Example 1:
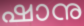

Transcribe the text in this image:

ഷാനു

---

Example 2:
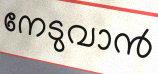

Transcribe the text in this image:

നേടുവാൻ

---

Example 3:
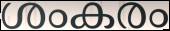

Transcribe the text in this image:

ശംകരം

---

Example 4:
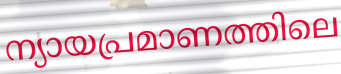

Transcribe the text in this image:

ന്യായപ്രമാണത്തിലെ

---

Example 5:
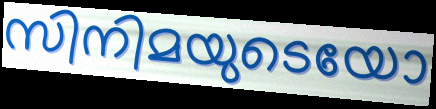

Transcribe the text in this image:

സിനിമയുടെയോ